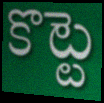
కొట్టె